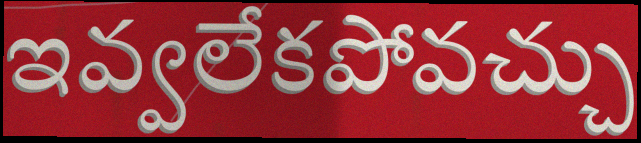
ఇవ్వలేకపోవచ్చు